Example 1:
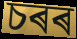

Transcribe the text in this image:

চৰৰ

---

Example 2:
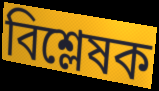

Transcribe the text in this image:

বিশ্লেষক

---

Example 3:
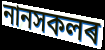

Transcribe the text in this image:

নানসকলৰ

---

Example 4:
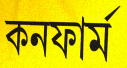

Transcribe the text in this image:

কনফাৰ্ম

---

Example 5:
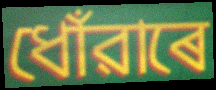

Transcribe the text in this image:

ধোঁৱাৰে